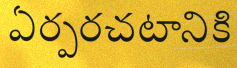
ఏర్పరచటానికి